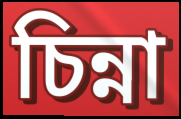
চিন্না